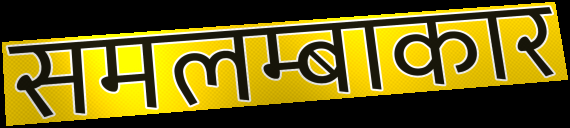
समलम्बाकार